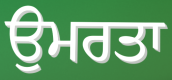
ਉਮਰਤਾ